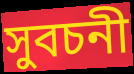
সুবচনী